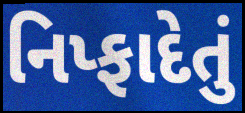
નિપ્ફાદેતું